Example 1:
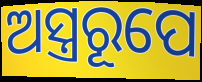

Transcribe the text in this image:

ଅସ୍ତ୍ରରୂପେ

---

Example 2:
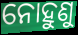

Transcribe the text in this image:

ନୋହୁଣୁ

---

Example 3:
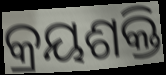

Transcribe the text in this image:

କ୍ରୟଶକ୍ତି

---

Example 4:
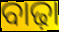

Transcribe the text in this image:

ବାଢ଼ା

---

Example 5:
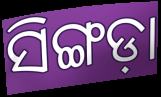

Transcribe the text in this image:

ସିଙ୍ଗଡ଼ା